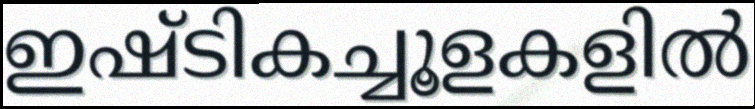
ഇഷ്ടികച്ചൂളകളിൽ